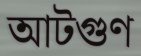
আটগুণ